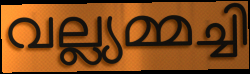
വല്ല്യമ്മച്ചി